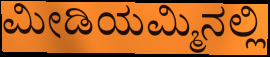
ಮೀಡಿಯಮ್ಮಿನಲ್ಲಿ